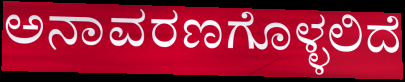
ಅನಾವರಣಗೊಳ್ಳಲಿದೆ